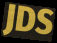
JDS